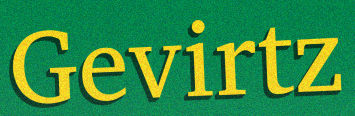
Gevirtz